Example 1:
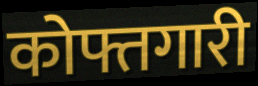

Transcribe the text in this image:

कोफ्तगारी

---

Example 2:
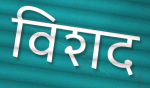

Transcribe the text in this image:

विशद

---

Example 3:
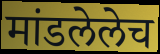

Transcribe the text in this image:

मांडलेलेच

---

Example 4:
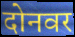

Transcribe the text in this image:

दोनवर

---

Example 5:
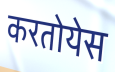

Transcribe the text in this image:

करतोयेस